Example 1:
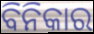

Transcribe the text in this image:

ବିନିକାର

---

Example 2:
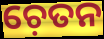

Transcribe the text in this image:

ଚ଼େତନ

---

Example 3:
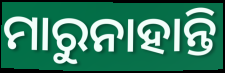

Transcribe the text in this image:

ମାରୁନାହାନ୍ତି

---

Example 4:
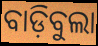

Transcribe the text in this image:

ବାଡ଼ିବୁଲା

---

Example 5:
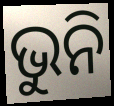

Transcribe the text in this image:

ଭୁନି